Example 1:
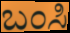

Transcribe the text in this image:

ಬಂಸಿ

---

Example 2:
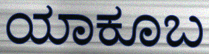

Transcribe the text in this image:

ಯಾಕೂಬ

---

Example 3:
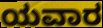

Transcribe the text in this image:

ಯವಾರ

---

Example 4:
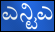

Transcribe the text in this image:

ಎನ್ಟಿಎ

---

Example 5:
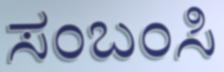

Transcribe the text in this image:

ಸಂಬಂಸಿ